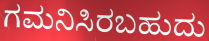
ಗಮನಿಸಿರಬಹುದು